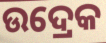
ଉଦ୍ରେକ